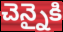
చెన్నైకి